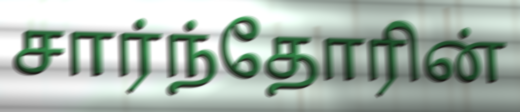
சார்ந்தோரின்